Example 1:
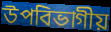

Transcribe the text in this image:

উপবিভাগীয়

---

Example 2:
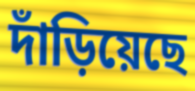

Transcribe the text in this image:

দাঁড়িয়েছে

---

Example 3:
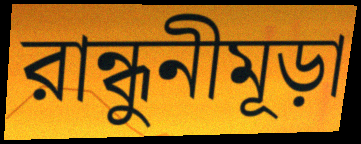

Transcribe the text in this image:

রান্ধুনীমূড়া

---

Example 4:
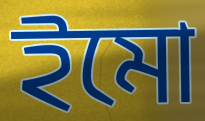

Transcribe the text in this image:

ইমো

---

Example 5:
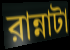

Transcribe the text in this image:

রান্নাটা